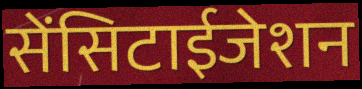
सेंसिटाईजेशन